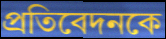
প্রতিবেদনকে